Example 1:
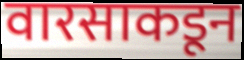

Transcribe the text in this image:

वारसाकडून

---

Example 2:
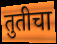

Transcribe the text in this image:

तुतीचा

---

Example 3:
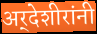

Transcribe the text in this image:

अर्देशीरांनी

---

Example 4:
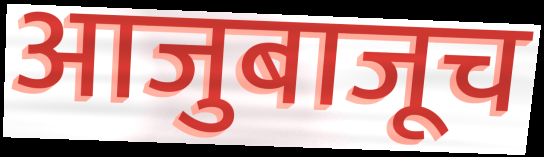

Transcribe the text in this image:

आजुबाजूच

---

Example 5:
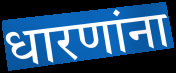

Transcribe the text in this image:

धारणांना